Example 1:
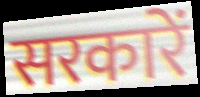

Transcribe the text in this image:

सरकारें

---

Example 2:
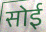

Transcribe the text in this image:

सोई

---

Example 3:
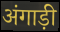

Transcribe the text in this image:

अंगाड़ी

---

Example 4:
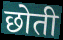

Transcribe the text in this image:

छोती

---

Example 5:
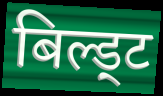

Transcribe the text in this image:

बिल्ड्ट